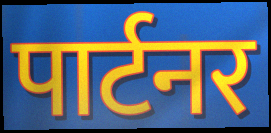
पार्टनर